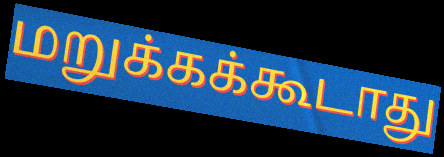
மறுக்கக்கூடாது